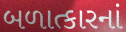
બળાત્કારનાં